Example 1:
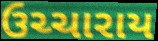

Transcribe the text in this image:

ઉચ્ચારાય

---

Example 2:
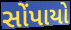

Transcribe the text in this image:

સોંપાયો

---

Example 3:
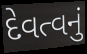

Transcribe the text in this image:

દેવત્વનું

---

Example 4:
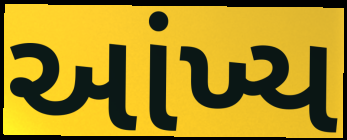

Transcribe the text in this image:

આંખ્ય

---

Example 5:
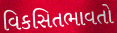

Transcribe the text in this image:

વિકસિતભાવતો